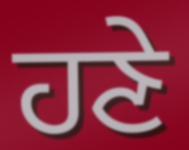
ਹਣੇ